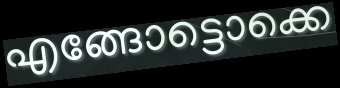
എങ്ങോട്ടൊക്കെ